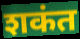
शकंत